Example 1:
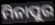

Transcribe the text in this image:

ମିନାପୁର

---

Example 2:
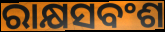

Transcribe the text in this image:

ରାକ୍ଷସବଂଶ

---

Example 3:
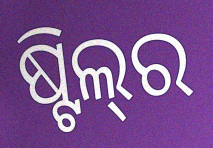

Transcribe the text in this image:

ଷ୍ଟିଲ୍‌ର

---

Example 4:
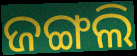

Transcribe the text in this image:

ଜଙ୍ଗଲି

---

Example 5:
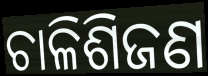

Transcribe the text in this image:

ଚାଳିଶିଜଣ